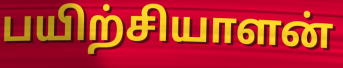
பயிற்சியாளன்